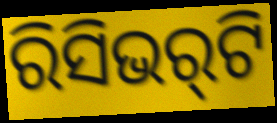
ରିସିଭର୍‌ଟି